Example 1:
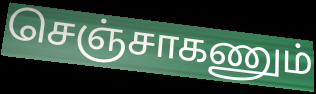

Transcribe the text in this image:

செஞ்சாகணும்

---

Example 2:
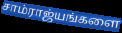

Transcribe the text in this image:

சாம்ராஜ்யங்களை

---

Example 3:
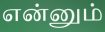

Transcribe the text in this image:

என்னும்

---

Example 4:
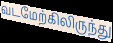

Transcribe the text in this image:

வடமேற்கிலிருந்து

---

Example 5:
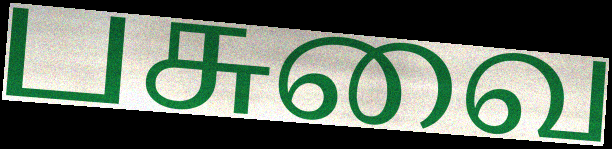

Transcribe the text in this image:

பசுவை